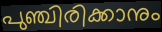
പുഞ്ചിരിക്കാനും